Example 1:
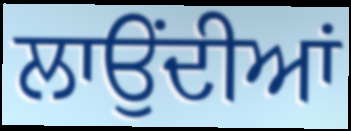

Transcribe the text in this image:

ਲਾਉਂਦੀਆਂ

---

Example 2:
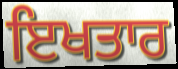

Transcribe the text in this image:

ਇਖਤਾਰ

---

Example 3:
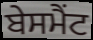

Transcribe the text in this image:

ਬੇਸਮੈਂਟ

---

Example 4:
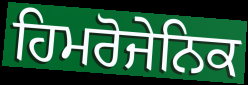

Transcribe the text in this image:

ਹਿਮਰੋਜੇਨਿਕ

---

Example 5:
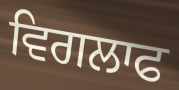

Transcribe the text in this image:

ਵਿਗਲਾਫ